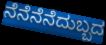
ನೆನೆನೆನೆದುಬ್ಬದ